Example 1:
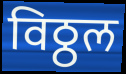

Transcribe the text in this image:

विठ्ठल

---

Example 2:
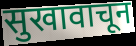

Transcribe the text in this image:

सुखावाचून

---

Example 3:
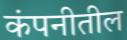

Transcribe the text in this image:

कंपनीतील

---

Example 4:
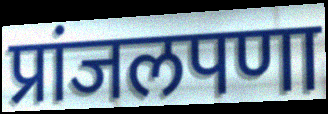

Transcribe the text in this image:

प्रांजलपणा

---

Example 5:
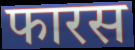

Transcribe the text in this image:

फारस